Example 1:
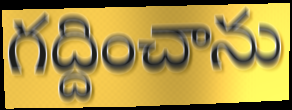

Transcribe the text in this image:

గద్దించాను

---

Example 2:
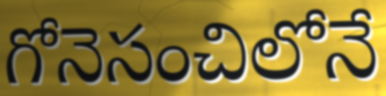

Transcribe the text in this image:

గోనెసంచిలోనే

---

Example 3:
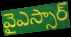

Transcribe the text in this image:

వైఎస్సార్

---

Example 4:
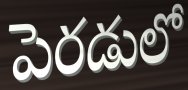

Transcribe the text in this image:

పెరడులో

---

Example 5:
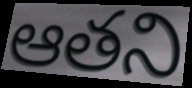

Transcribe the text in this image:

ఆతని